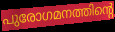
പുരോഗമനത്തിന്റെ